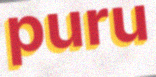
puru